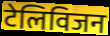
टेलिविजन